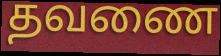
தவணை